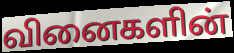
வினைகளின்